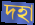
দহা